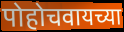
पोहोचवायच्या